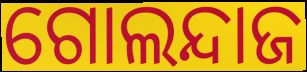
ଗୋଲନ୍ଦାଜ